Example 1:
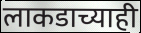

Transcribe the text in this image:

लाकडाच्याही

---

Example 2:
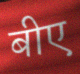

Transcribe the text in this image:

बीए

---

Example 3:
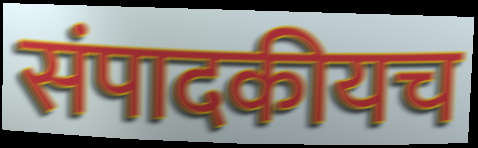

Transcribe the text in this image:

संपादकीयच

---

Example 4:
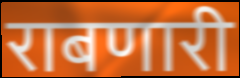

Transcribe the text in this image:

राबणारी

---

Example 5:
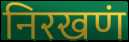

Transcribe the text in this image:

निरखणं